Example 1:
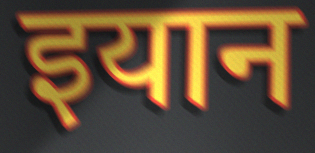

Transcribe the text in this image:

इयान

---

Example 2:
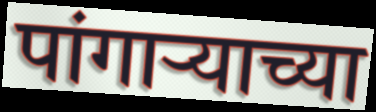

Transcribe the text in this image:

पांगार्‍याच्या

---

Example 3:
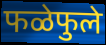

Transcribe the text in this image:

फळेफुले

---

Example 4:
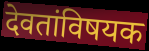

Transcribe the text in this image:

देवतांविषयक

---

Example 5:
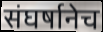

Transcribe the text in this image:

संघर्षानेच